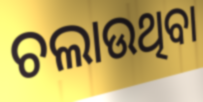
ଚଲାଉଥିବା